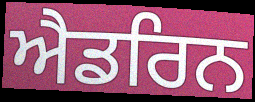
ਐਡਰਿਨ